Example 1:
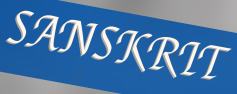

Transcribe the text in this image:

SANSKRIT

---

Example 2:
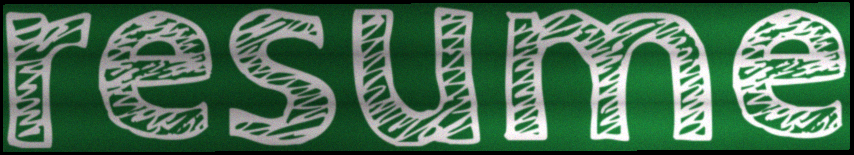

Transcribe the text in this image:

resume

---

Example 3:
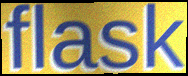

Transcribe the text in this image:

flask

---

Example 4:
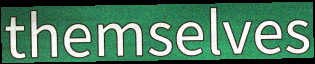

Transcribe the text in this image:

themselves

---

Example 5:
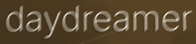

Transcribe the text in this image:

daydreamer